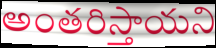
అంతరిస్తాయని